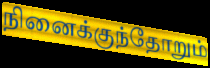
நினைக்குந்தோறும்